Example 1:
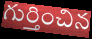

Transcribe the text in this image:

గుర్తించిన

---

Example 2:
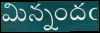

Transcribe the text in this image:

మిన్నందఁ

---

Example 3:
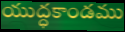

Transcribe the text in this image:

యుద్ధకాండము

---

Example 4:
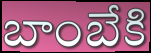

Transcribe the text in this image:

బాంబేకి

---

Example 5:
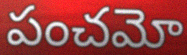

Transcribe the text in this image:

పంచమో